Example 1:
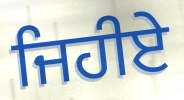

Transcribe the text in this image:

ਜਿਹੀਏ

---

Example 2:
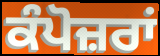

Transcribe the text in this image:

ਕੰਪੋਜ਼ਰਾਂ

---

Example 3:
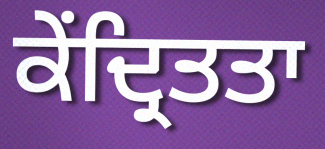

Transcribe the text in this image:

ਕੇਂਦ੍ਰਿਤਤਾ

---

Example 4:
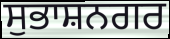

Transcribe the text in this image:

ਸੁਭਾਸ਼ਨਗਰ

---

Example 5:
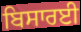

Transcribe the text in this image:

ਬਿਸਾਰਈ